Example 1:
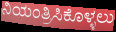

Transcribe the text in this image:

ನಿಯಂತ್ರಿಸಿಕೊಳ್ಳಲು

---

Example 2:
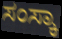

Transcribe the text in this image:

ಸಂಸ್ಕಾ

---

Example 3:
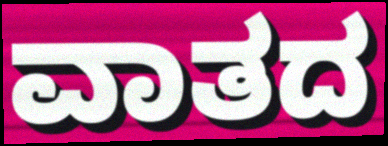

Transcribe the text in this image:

ವಾತದ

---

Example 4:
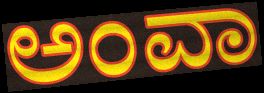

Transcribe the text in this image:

ಅಂವಾ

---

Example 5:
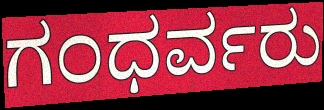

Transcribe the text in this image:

ಗಂಧರ್ವರು